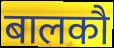
बालकौ